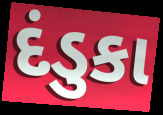
દંડુકા